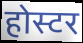
होस्टर